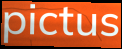
pictus